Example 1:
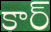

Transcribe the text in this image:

కార్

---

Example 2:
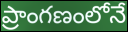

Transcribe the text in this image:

ప్రాంగణంలోనే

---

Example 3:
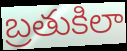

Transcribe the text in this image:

బ్రతుకిలా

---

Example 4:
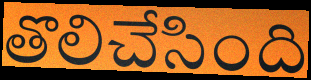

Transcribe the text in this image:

తొలిచేసింది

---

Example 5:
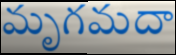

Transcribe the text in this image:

మృగమదా